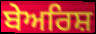
ਬੇਅਰਿਸ਼